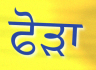
ਫੋੜਾ